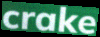
crake